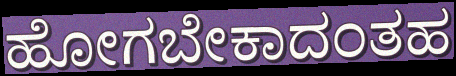
ಹೋಗಬೇಕಾದಂತಹ